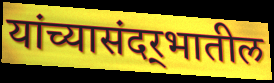
यांच्यासंदर्भातील